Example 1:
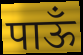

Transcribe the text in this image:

पाऊँ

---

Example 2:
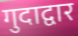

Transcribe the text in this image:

गुदाद्वार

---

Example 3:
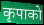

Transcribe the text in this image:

कृपाको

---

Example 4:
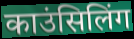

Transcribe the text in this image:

काउंसिलिंग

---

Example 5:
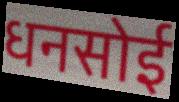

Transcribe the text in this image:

धनसोई